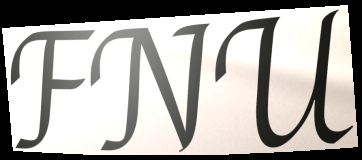
FNU